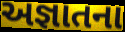
અજ્ઞાતના